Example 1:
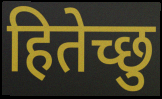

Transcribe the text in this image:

हितेच्छु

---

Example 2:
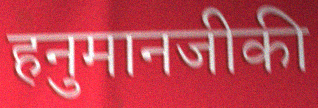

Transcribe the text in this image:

हनुमानजीकी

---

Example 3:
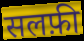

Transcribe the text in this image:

सलफ़ी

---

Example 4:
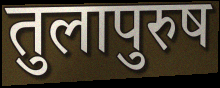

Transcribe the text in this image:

तुलापुरुष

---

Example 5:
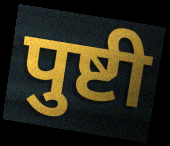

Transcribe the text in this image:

पुष्टी